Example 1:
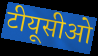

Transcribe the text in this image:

टीयूसीओ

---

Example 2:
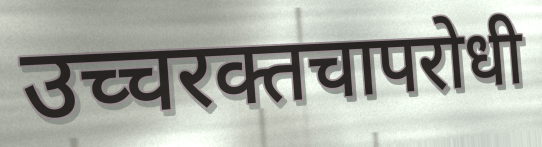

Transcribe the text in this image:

उच्चरक्तचापरोधी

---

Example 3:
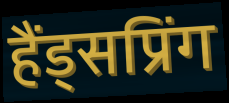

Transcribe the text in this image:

हैंड्सप्रिंग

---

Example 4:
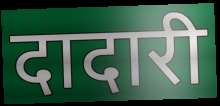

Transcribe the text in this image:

दादारी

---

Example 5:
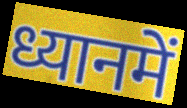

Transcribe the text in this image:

ध्यानमें